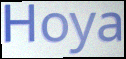
Hoya